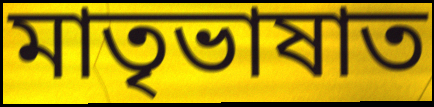
মাতৃভাষাত